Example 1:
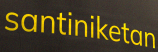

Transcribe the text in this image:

santiniketan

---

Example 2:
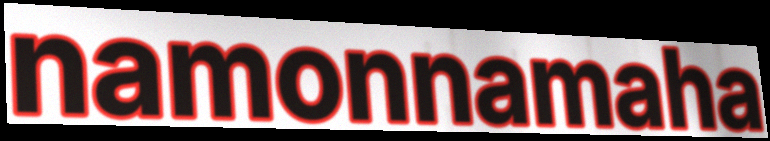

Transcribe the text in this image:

namonnamaha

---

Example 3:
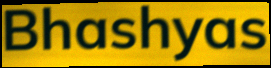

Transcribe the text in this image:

Bhashyas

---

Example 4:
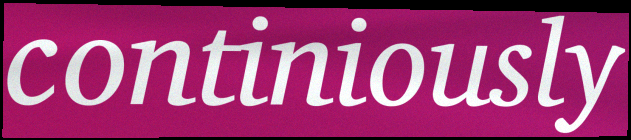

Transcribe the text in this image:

continiously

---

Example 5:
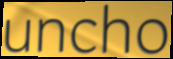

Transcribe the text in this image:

uncho